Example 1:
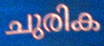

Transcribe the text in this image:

ചുരിക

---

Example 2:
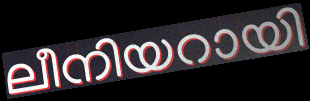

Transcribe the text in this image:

ലീനിയറായി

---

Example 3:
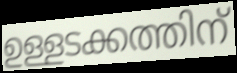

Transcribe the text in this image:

ഉള്ളടക്കത്തിന്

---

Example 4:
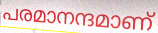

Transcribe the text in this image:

പരമാനന്ദമാണ്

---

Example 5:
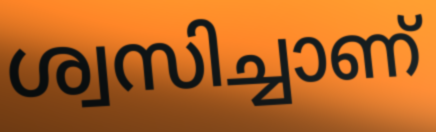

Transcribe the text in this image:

ശ്വസിച്ചാണ്